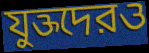
যুক্তদেরও